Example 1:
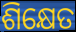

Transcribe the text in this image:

ଶିକ୍ଷେତ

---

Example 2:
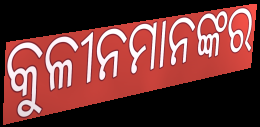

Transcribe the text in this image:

କୁଳୀନମାନଙ୍କର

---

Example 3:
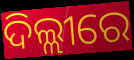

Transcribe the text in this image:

ଦିଲ୍ଲୀରେ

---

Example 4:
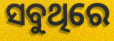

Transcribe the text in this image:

ସବୁଥିରେ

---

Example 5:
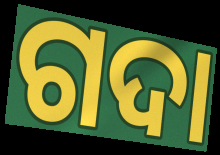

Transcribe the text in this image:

ଗଦା